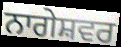
ਨਾਗੇਸ਼ਵਰ